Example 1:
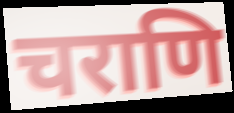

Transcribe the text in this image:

चराणि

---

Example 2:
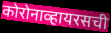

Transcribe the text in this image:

कोरोनाव्हायरसची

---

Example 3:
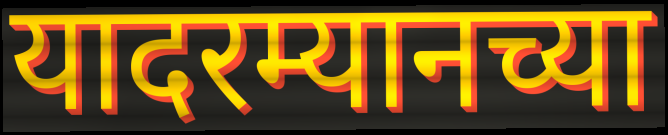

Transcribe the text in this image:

यादरम्यानच्या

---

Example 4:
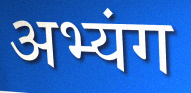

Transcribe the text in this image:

अभ्यंग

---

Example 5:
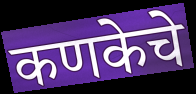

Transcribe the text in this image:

कणकेचे